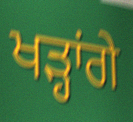
ਖੜ੍ਹਾਂਗੇ